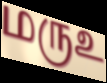
மருஉ